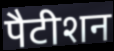
पैटीशन